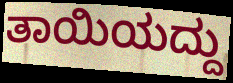
ತಾಯಿಯದ್ದು